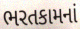
ભરતકામનાં